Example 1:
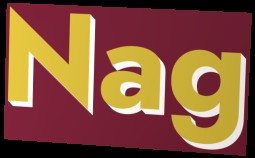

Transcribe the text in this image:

Nag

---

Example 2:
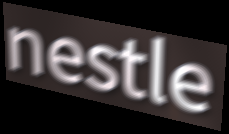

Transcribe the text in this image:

nestle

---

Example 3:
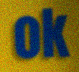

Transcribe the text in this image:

ok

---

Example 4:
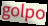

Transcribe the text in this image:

golpo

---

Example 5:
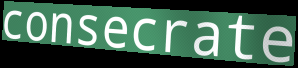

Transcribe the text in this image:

consecrate